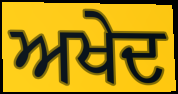
ਅਖੇਦ